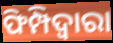
ଫିମ୍ପିଦ୍ଵାରା